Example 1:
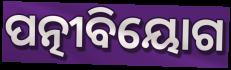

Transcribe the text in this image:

ପତ୍ନୀବିୟୋଗ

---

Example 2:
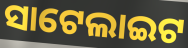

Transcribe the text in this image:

ସାଟେଲାଇଟ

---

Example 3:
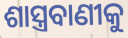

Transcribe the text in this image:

ଶାସ୍ତ୍ରବାଣୀକୁ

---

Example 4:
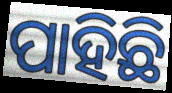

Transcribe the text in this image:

ପାହିଛି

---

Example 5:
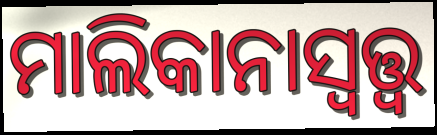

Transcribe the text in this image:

ମାଲିକାନାସ୍ୱତ୍ତ୍ୱ